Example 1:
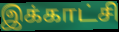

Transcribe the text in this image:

இக்காட்சி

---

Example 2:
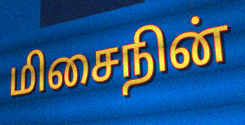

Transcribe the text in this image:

மிசைநின்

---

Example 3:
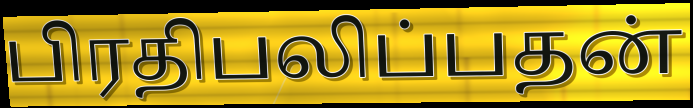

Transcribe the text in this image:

பிரதிபலிப்பதன்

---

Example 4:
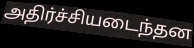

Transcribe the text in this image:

அதிர்ச்சியடைந்தன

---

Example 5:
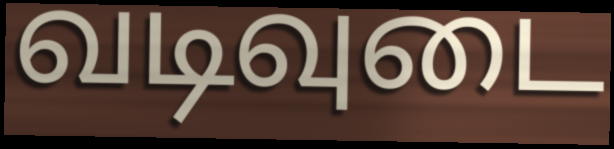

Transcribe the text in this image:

வடிவுடை